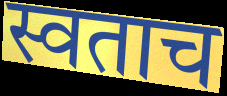
स्वताच